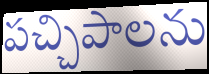
పచ్చిపాలను